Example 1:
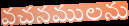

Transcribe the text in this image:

వచనములను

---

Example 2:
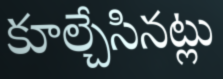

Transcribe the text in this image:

కూల్చేసినట్లు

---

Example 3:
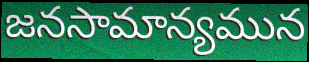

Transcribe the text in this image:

జనసామాన్యమున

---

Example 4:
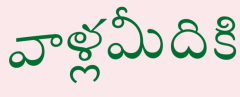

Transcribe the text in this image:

వాళ్లమీదికి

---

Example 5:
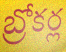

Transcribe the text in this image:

బ్రోకర్ల